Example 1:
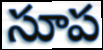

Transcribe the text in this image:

సూప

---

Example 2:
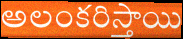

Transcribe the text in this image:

అలంకరిస్తాయి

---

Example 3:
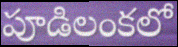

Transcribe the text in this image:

పూడిలంకలో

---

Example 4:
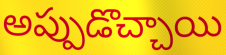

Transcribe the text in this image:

అప్పుడొచ్చాయి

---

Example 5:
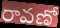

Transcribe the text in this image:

రావణో